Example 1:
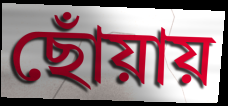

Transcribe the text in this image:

ছোঁয়ায়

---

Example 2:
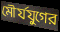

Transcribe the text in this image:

মৌর্যযুগের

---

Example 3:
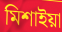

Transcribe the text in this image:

মিশাইয়া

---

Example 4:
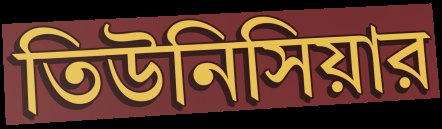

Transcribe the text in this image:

তিউনিসিয়ার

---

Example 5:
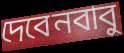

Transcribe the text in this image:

দেবেনবাবু